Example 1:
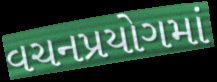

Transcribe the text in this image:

વચનપ્રયોગમાં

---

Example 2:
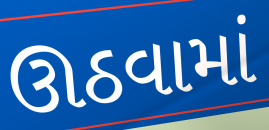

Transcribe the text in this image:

ઊઠવામાં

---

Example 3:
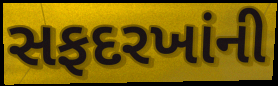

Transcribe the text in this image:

સફદરખાંની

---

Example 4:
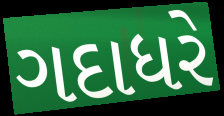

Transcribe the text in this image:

ગદાધરે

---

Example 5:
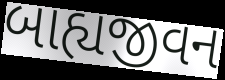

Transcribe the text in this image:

બાહ્યજીવન